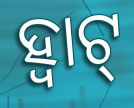
ହ୍ବାଟ୍